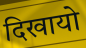
दिखायो